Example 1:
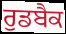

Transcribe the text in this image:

ਰੁਡਬੈਕ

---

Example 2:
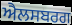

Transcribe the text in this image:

ਐਲਸਬਰਗ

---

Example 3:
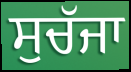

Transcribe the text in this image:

ਸੁਚੱਜਾ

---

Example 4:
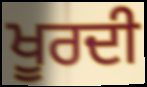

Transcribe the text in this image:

ਖੂਰਦੀ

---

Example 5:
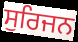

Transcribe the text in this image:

ਸੁਰਿਜਨ